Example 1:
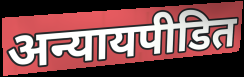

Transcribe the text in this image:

अन्यायपीडित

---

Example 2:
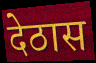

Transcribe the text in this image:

देठास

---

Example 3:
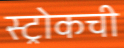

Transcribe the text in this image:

स्ट्रोकची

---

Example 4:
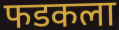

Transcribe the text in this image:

फडकला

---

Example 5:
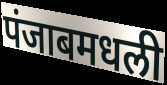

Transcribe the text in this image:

पंजाबमधली